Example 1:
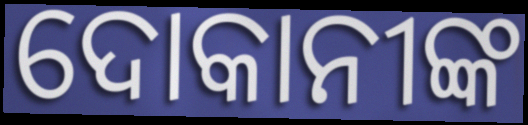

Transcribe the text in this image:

ଦୋକାନୀଙ୍କ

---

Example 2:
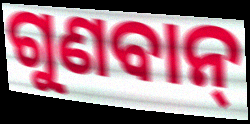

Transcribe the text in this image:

ଗୁଣବାନ୍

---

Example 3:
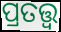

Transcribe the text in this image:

ପ୍ରତତ୍ତ୍ୱ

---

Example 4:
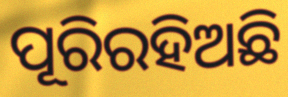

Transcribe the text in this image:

ପୂରିରହିଅଛି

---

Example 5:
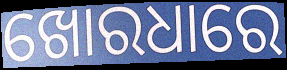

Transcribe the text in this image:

ଖୋରଧାରେ